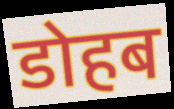
डोहब